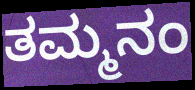
ತಮ್ಮನಂ